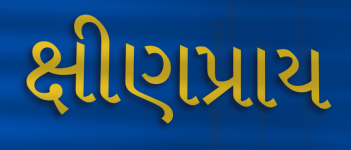
ક્ષીણપ્રાય